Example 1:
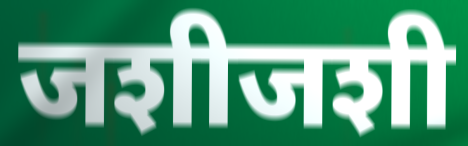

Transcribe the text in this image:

जशीजशी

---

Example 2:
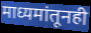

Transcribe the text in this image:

माध्यमांतूनही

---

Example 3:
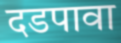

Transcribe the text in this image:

दडपावा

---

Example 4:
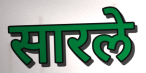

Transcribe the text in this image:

सारले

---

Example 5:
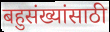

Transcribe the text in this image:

बहुसंख्यांसाठी